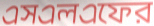
এসএলএফের